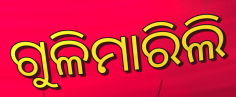
ଗୁଳିମାରିଲି